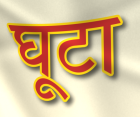
घूटा